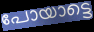
പോയാട്ടെ